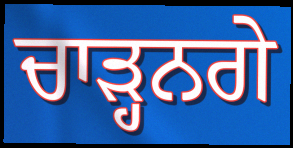
ਚਾੜ੍ਹਨਗੇ